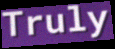
Truly